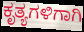
ಕೃತ್ಯಗಳಿಗಾಗಿ